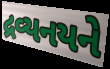
દ્રવ્યનયને